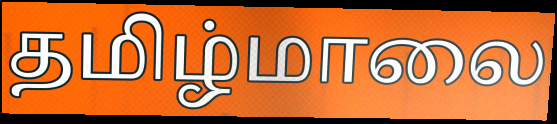
தமிழ்மாலை